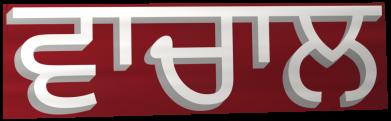
ਵਾਚਾਲ